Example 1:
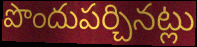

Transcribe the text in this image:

పొందుపర్చినట్లు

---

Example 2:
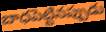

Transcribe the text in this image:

బాధపెట్టినప్పుడు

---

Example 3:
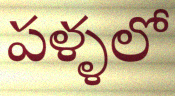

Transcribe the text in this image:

పళ్ళలో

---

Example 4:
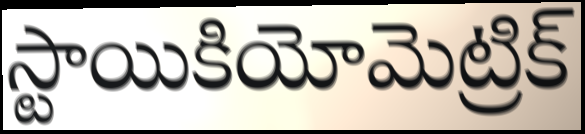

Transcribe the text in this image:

స్టాయికియోమెట్రిక్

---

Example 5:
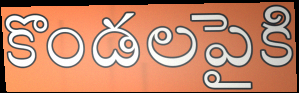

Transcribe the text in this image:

కొండలపైకి